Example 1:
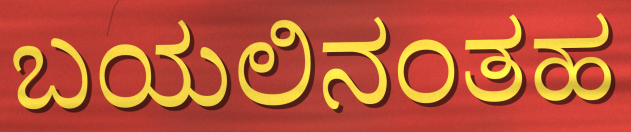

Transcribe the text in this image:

ಬಯಲಿನಂತಹ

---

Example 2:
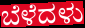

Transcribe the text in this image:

ಬೆಳೆದಳು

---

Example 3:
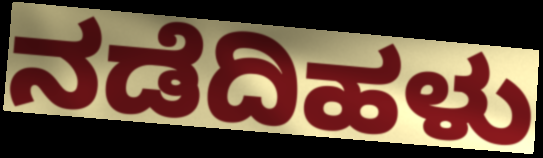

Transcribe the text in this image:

ನಡೆದಿಹಳು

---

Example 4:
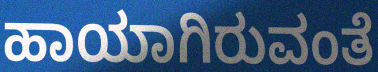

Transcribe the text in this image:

ಹಾಯಾಗಿರುವಂತೆ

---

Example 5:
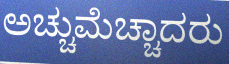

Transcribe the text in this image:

ಅಚ್ಚುಮೆಚ್ಚಾದರು